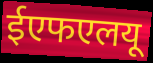
ईएफएलयू